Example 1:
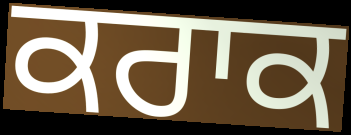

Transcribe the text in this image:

ਕਰਾਕ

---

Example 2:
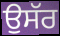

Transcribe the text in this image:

ਉਸੱਰ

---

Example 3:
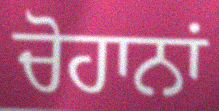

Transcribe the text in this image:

ਚੋਹਾਨਾਂ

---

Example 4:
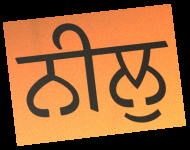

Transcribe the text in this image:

ਨੀਲੁ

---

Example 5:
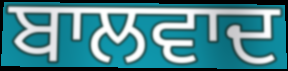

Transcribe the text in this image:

ਬਾਲਵਾਦ